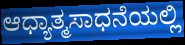
ಆಧ್ಯಾತ್ಮಸಾಧನೆಯಲ್ಲಿ